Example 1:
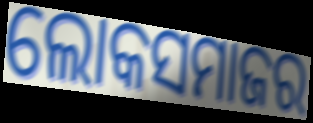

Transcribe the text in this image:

ଲୋକସମାଜର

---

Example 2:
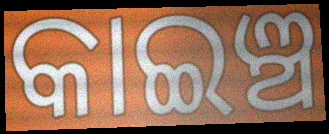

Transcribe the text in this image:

କାଇଞ୍ଚ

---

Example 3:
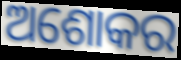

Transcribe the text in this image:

ଅଶୋକର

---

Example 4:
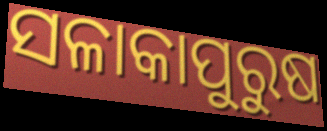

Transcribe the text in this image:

ସଳାକାପୁରୁଷ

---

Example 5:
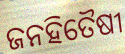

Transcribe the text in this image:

ଜନହିତୈଷୀ